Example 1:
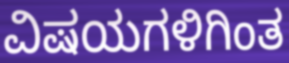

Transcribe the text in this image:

ವಿಷಯಗಳಿಗಿಂತ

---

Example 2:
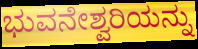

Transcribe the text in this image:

ಭುವನೇಶ್ವರಿಯನ್ನು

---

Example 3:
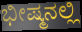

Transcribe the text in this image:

ಭೀಷ್ಮನಲ್ಲಿ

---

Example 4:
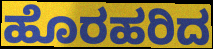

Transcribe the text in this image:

ಹೊರಹರಿದ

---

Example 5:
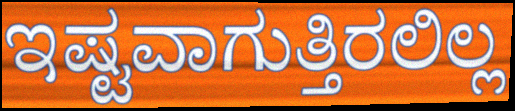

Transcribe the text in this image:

ಇಷ್ಟವಾಗುತ್ತಿರಲಿಲ್ಲ